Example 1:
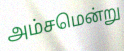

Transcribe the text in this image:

அம்சமென்று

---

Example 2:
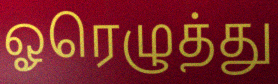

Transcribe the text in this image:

ஓரெழுத்து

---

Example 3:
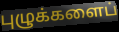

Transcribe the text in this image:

புழுக்களைப்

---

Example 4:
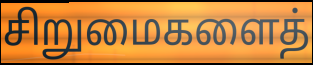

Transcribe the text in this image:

சிறுமைகளைத்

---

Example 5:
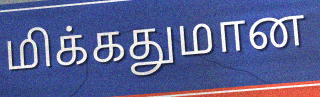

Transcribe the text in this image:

மிக்கதுமான